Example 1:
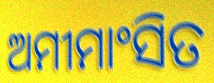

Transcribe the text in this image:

ଅମୀମାଂସିତ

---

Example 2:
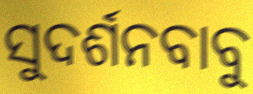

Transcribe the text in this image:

ସୁଦର୍ଶନବାବୁ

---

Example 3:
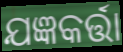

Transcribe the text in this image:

ଯଜ୍ଞକର୍ତ୍ତା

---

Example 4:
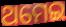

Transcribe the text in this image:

ଥମେଇ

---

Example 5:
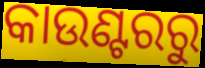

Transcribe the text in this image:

କାଉଣ୍ଟରରୁ